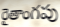
రైతాంగపు